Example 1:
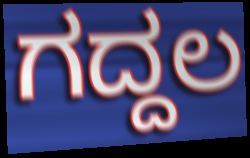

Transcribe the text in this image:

ಗದ್ದಲ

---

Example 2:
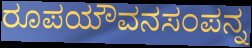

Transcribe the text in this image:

ರೂಪಯೌವನಸಂಪನ್ನ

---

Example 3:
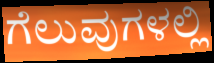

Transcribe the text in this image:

ಗೆಲುವುಗಳಲ್ಲಿ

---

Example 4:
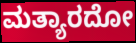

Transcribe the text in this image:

ಮತ್ಯಾರದೋ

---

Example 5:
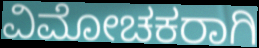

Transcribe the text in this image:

ವಿಮೋಚಕರಾಗಿ